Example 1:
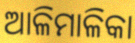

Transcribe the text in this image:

ଆଳିମାଳିକା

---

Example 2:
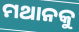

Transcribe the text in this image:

ମଥାନକୁ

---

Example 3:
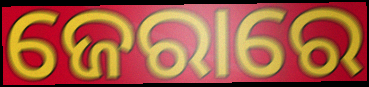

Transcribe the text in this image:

ଜେରାରେ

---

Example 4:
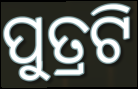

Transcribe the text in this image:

ପୁତ୍ରଟି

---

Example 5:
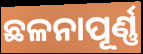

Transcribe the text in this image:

ଛଳନାପୂର୍ଣ୍ଣ